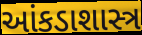
આંકડાશાસ્ત્ર